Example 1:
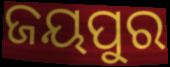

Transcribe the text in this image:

ଜୟପୁର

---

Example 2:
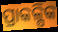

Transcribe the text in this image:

ପ୍ରାକଳ୍ପିକ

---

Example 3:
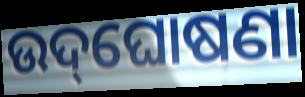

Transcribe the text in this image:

ଉଦ୍‌ଘୋଷଣା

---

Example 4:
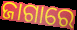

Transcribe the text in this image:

ଜାଗାରେ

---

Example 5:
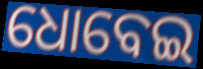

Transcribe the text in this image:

ଧୋବେଇ